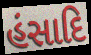
હંસાદિ